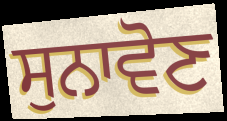
ਸੁਨਾਵੋਣ